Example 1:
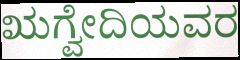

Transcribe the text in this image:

ಋಗ್ವೇದಿಯವರ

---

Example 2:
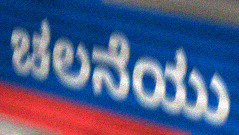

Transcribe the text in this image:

ಚಲನೆಯು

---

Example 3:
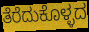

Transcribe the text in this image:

ತೆರೆದುಕೊಳ್ಳದ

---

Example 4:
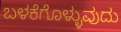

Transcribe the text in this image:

ಬಳಕೆಗೊಳ್ಳುವುದು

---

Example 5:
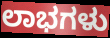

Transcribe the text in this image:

ಲಾಭಗಳು